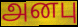
அனபு